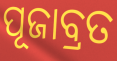
ପୂଜାବ୍ରତ